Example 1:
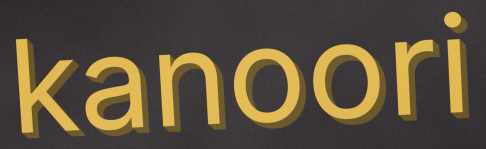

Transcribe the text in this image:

kanoori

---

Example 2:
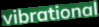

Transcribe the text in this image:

vibrational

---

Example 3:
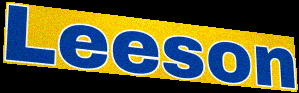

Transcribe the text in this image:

Leeson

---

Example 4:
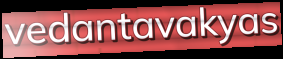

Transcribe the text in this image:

vedantavakyas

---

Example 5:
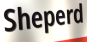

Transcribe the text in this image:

Sheperd